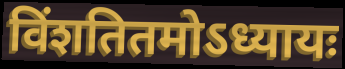
विंशतितमोऽध्यायः